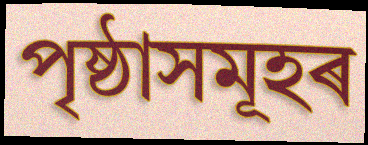
পৃষ্ঠাসমূহৰ